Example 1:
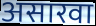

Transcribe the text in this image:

असारवा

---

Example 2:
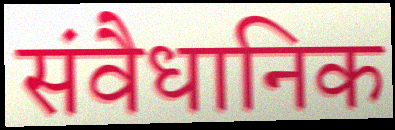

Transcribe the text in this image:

संवैधानिक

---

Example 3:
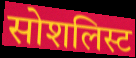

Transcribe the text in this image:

सोशलिस्ट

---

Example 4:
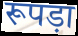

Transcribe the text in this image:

रूपड़ा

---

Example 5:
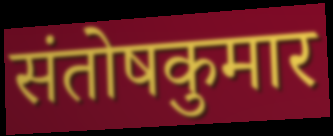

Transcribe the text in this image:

संतोषकुमार